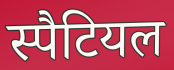
स्पैटियल